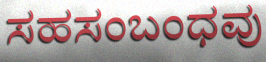
ಸಹಸಂಬಂಧವು